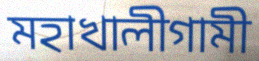
মহাখালীগামী